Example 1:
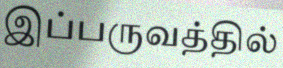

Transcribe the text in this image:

இப்பருவத்தில்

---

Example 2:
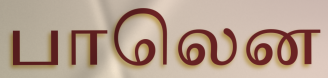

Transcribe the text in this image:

பாலென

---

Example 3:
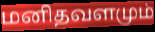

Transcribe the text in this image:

மனிதவளமும்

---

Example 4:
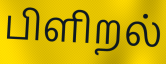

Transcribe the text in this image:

பிளிறல்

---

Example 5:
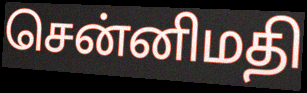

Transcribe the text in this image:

சென்னிமதி